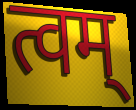
त्वम्